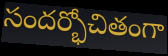
సందర్భోచితంగా